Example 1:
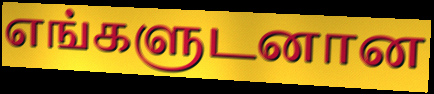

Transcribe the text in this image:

எங்களுடனான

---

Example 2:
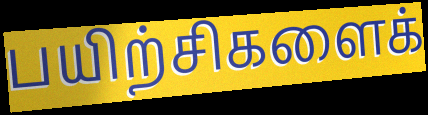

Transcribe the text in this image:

பயிற்சிகளைக்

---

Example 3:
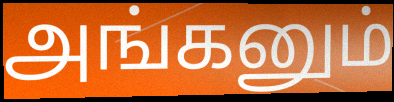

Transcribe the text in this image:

அங்கனும்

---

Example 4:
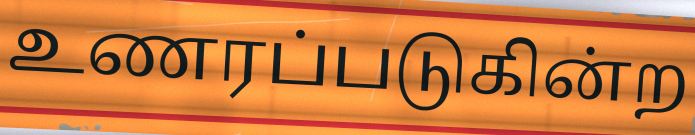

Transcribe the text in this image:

உணரப்படுகின்ற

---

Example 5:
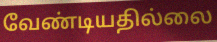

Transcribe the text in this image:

வேண்டியதில்லை